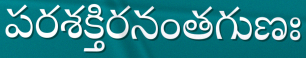
పరశక్తిరనంతగుణః